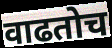
वाढतोच